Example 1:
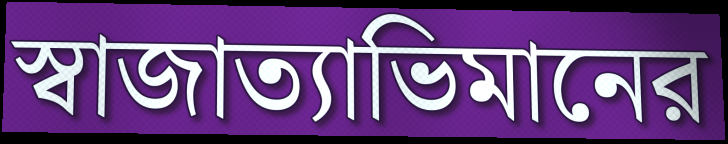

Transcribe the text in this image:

স্বাজাত্যাভিমানের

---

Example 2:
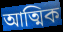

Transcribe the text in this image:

আত্মিক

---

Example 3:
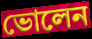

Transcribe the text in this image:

ভোলেন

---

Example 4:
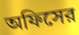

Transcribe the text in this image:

অফিসের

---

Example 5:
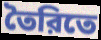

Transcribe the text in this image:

তৈরিতে